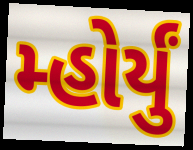
મ્હોર્યું